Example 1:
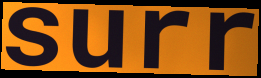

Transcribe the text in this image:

surr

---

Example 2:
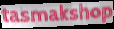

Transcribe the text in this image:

tasmakshop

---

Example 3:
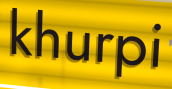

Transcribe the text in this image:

khurpi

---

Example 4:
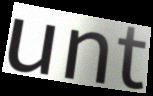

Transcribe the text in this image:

unt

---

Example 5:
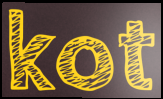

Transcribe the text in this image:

kot